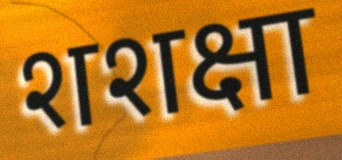
शशक्षा